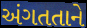
અંગતતાને